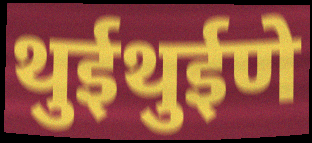
थुईथुईणे